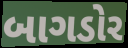
બાગડોર